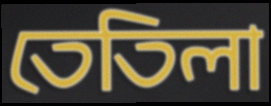
তেতিলা